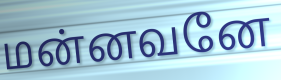
மன்னவனே